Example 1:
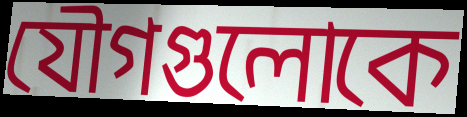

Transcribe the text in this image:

যৌগগুলোকে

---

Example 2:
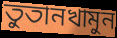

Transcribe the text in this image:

তুতানখামুন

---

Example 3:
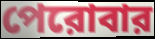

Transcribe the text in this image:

পেরোবার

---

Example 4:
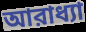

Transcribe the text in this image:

আরাধ্যা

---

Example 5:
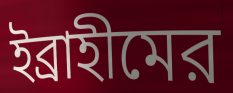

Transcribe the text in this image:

ইব্রাহীমের